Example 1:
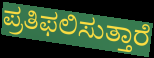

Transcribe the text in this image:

ಪ್ರತಿಫಲಿಸುತ್ತಾರೆ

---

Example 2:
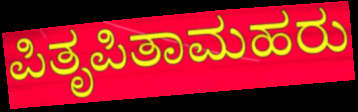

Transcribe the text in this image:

ಪಿತೃಪಿತಾಮಹರು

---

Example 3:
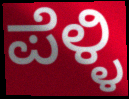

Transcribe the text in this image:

ಪೆಳ್ಳಿ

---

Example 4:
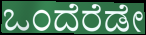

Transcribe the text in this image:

ಒಂದೆರೆಡೇ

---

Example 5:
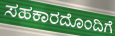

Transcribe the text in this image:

ಸಹಕಾರದೊಂದಿಗೆ